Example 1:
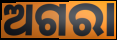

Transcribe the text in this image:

ଅଗରା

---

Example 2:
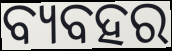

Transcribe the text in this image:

ବ୍ୟବହର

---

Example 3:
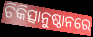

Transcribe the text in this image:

ଚିକିତ୍ସାନୁଷ୍ଠାନରେ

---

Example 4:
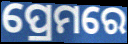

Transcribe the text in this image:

ପ୍ରେମରେ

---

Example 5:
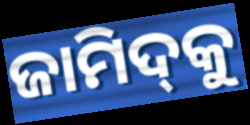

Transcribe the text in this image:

ଜାମିଦ୍‌କୁ